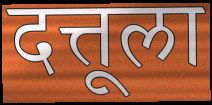
दत्तूला